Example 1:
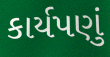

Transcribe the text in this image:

કાર્યપણું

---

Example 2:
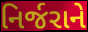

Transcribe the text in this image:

નિર્જરાને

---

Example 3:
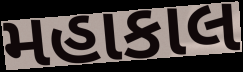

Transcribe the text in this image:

મહાકાલ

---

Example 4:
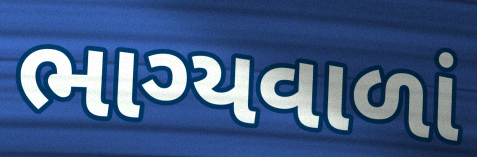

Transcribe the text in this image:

ભાગ્યવાળાં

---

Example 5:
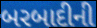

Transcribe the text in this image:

બરબાદીની